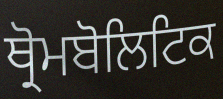
ਥ੍ਰੋਮਬੋਲਿਟਿਕ